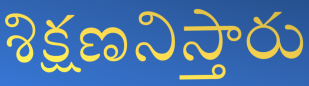
శిక్షణనిస్తారు